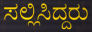
ಸಲ್ಲಿಸಿದ್ದರು